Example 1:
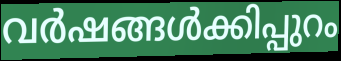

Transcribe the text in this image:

വർഷങ്ങൾക്കിപ്പുറം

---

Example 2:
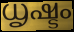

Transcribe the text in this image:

ധൃഷ്ടം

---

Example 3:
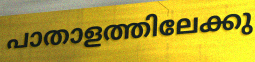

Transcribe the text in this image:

പാതാളത്തിലേക്കു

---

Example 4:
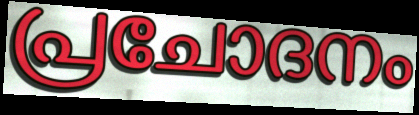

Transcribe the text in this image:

പ്രചോദനം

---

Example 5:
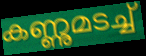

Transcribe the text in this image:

കണ്ണുമടച്ച്